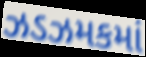
ઝડઝમકમાં